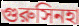
গুরুসিনহা